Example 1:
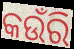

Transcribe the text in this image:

କଉଁରି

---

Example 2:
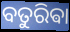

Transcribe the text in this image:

ବତୁରିଵା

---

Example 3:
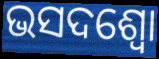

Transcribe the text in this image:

ଭସଦଶ୍ଵୋ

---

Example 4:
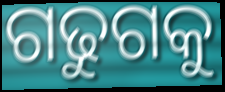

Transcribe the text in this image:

ଗଢୁଗକୁ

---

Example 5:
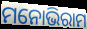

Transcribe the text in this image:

ମନୋଭିରାମ